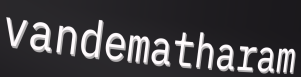
vandematharam